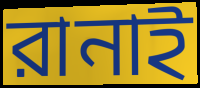
রানাই